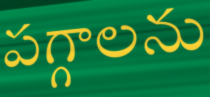
పగ్గాలను